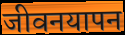
जीवनयापन